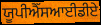
ਯੂਪੀਐੱਸਆਈਡੀਏ